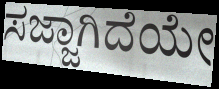
ಸಜ್ಜಾಗಿದೆಯೇ